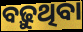
ବଢ଼ୁଥିବା